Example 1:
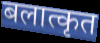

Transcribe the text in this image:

बलात्कृत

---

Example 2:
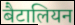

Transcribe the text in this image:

बैटालियन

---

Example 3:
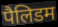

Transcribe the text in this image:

पैलिडम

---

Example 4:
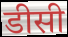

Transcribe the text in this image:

डीसी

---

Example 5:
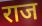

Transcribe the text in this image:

राज